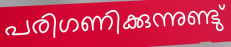
പരിഗണിക്കുന്നുണ്ടു്